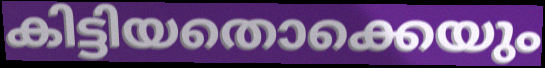
കിട്ടിയതൊക്കെയും